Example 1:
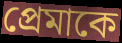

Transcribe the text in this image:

প্রেমাকে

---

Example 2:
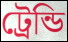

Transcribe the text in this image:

ট্রেন্ডি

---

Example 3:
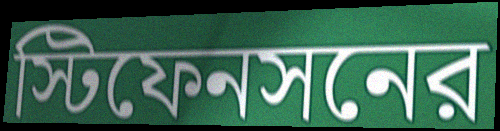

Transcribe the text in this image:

স্টিফেনসনের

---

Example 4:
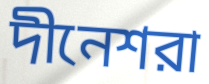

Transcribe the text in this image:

দীনেশরা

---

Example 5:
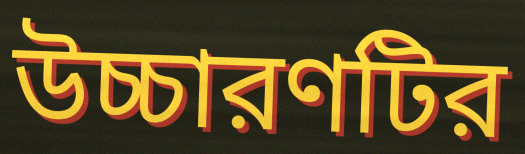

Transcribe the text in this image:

উচ্চারণটির